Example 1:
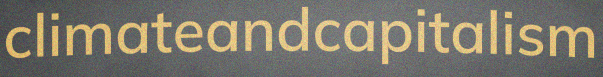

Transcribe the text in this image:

climateandcapitalism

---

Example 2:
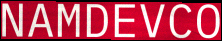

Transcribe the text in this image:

NAMDEVCO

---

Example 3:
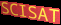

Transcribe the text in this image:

SCISAT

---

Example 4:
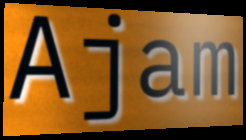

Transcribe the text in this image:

Ajam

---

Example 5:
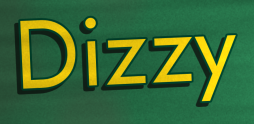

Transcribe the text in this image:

Dizzy